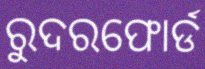
ରୁଦରଫୋର୍ଡ